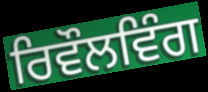
ਰਿਵੌਲਵਿੰਗ